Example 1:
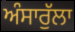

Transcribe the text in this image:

ਅੰਸਾਰੁੱਲਾ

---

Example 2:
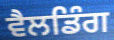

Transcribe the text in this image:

ਵੈਲਡਿੰਗ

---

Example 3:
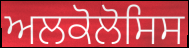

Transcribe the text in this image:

ਅਲਕੋਲੋਸਿਸ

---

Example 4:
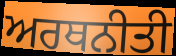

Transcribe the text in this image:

ਅਰਥਨੀਤੀ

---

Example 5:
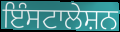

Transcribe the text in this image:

ਇੰਸਟਾਲੇਸ਼ਨ